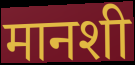
मानशी